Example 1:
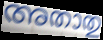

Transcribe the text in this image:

അതാതു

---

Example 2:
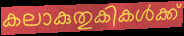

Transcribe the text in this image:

കലാകുതുകികൾക്ക്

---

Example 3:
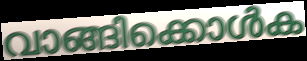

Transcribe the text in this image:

വാങ്ങിക്കൊൾക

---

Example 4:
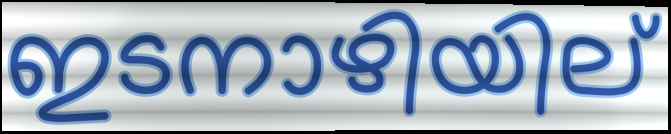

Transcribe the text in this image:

ഇടനാഴിയില്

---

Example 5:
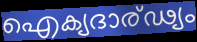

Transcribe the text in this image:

ഐക്യദാര്ഢ്യം